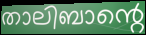
താലിബാന്റെ